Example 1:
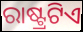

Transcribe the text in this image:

ରାଷ୍ଟ୍ରଟିଏ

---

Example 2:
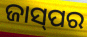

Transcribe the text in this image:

ଜାସ୍‌ପର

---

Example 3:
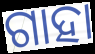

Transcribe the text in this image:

ଗାହା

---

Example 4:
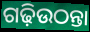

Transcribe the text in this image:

ଗଢ଼ିଉଠନ୍ତା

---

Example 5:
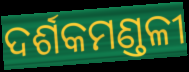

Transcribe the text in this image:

ଦର୍ଶକମଣ୍ଡଳୀ